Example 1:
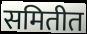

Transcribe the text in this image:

समितीत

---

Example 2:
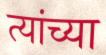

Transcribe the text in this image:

त्यांच्या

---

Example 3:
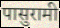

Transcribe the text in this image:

पासुरामी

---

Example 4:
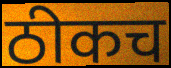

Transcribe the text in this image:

ठीकच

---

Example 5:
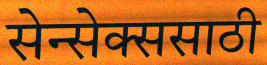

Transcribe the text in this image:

सेन्सेक्ससाठी